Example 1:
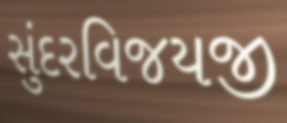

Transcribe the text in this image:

સુંદરવિજયજી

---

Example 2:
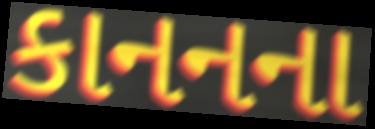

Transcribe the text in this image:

કાનનના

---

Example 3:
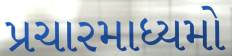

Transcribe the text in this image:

પ્રચારમાધ્યમો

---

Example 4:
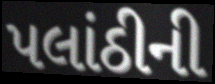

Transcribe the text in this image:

પલાંઠીની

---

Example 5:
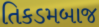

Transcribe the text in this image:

તિકડમબાજ